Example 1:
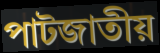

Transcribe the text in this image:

পাটজাতীয়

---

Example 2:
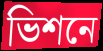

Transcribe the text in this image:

ভিশনে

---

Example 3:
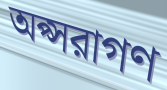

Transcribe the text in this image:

অপ্সরাগণ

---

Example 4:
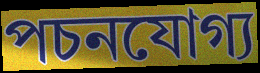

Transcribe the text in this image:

পচনযোগ্য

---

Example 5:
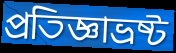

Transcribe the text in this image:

প্রতিজ্ঞাভ্রষ্ট